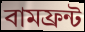
বামফ্রন্ট